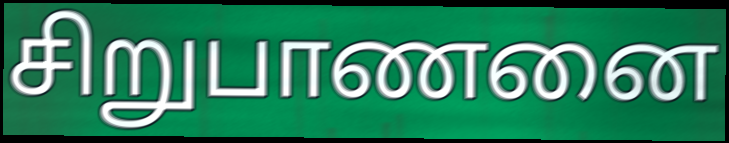
சிறுபாணனை